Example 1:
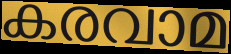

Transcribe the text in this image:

കരവാമ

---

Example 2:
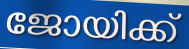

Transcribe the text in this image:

ജോയിക്ക്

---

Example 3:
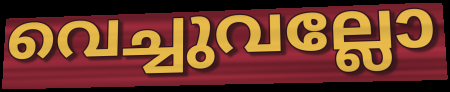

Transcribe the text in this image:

വെച്ചുവല്ലോ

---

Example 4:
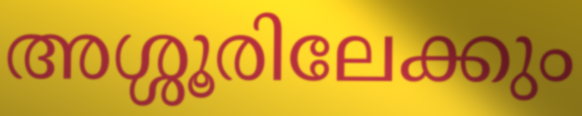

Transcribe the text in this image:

അശ്ശൂരിലേക്കും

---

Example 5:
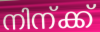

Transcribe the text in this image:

നിന്ക്ക്